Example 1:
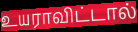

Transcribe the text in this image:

உயராவிட்டால்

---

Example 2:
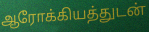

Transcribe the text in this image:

ஆரோக்கியத்துடன்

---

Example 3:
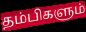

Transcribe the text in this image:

தம்பிகளும்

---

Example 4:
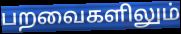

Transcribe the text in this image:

பறவைகளிலும்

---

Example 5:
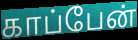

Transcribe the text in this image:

காப்பேன்